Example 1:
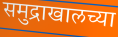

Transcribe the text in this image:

समुद्राखालच्या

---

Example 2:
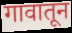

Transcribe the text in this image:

गावातून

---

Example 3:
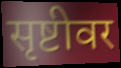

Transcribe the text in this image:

सृष्टीवर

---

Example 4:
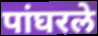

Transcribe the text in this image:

पांघरले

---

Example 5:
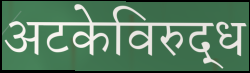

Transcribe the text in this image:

अटकेविरुद्ध